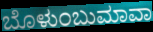
ಬೊಳುಂಬುಮಾವಾ